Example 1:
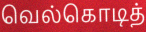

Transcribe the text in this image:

வெல்கொடித்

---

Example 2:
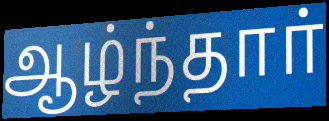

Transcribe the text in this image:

ஆழ்ந்தார்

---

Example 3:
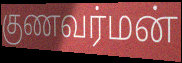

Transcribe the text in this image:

குணவர்மன்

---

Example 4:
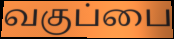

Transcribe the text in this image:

வகுப்பை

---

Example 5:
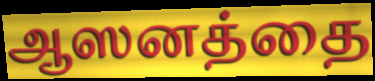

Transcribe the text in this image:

ஆஸனத்தை